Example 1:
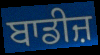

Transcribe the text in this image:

ਬਾਡੀਜ਼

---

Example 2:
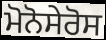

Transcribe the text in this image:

ਮੋਨੋਸੇਰੋਸ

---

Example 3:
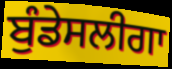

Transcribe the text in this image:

ਬੁੰਡੇਸਲੀਗਾ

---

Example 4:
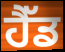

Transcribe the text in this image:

ਹੈੱਡ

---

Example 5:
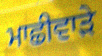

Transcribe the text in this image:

ਮਾਛੀਵਾੜੇ